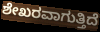
ಶೇಖರವಾಗುತ್ತಿದೆ